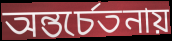
অন্তর্চেতনায়